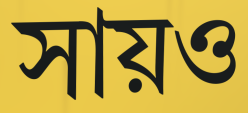
সায়ও